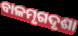
ବାଳମୃଗଦୃଶା